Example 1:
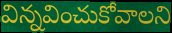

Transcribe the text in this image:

విన్నవించుకోవాలని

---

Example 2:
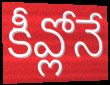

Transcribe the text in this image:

కీవ్లోనే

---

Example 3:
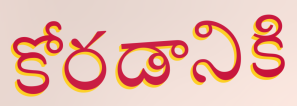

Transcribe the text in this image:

కోరడానికి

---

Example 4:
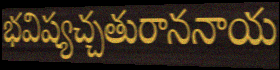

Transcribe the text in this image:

భవిష్యచ్చతురాననాయ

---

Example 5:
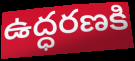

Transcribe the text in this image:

ఉద్ధరణకి